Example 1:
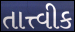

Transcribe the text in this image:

તાત્ત્વીક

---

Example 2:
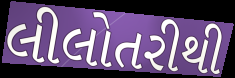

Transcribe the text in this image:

લીલોતરીથી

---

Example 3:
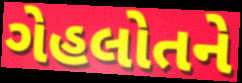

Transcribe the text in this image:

ગેહલોતને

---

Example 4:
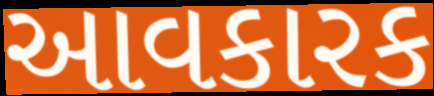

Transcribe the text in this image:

આવકારક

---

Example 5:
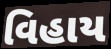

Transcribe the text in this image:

વિહાય